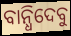
ବାନ୍ଧିଦେବୁ